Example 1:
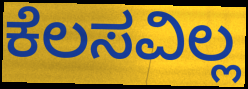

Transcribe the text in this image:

ಕೆಲಸವಿಲ್ಲ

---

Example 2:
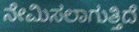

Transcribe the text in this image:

ನೇಮಿಸಲಾಗುತ್ತಿದೆ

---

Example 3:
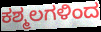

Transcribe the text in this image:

ಕಶ್ಮಲಗಳಿಂದ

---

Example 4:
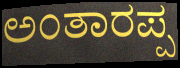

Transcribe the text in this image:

ಅಂತಾರಪ್ಪ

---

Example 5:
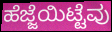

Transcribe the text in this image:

ಹೆಜ್ಜೆಯಿಟ್ಟೆವು